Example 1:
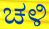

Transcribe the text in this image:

ಚಳಿ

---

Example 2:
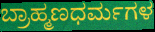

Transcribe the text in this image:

ಬ್ರಾಹ್ಮಣಧರ್ಮಗಳ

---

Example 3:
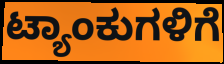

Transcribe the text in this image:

ಟ್ಯಾಂಕುಗಳಿಗೆ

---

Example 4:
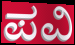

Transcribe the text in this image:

ಪವಿ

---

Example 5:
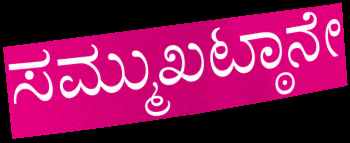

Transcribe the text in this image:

ಸಮ್ಮುಖಟ್ಠಾನೇ